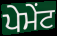
ਪੇਮੇਂਟ